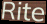
Rite